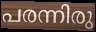
പരന്നിരു